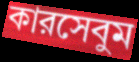
কারসেবুম